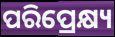
ପରିପ୍ରେକ୍ଷ୍ୟ